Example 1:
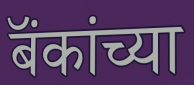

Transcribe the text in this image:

बॅंकांच्या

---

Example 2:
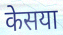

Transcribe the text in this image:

केसया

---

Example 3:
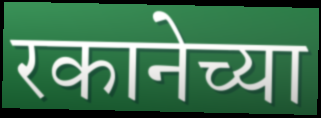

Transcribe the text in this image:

रकानेच्या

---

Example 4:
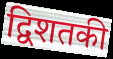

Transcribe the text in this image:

द्विशतकी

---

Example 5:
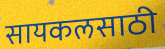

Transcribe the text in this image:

सायकलसाठी